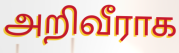
அறிவீராக